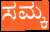
ಸಮ್ಕ